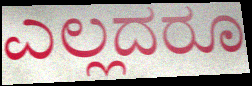
ಎಲ್ಲದರೂ